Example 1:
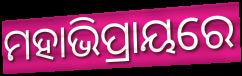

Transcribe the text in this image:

ମହାଭିପ୍ରାୟରେ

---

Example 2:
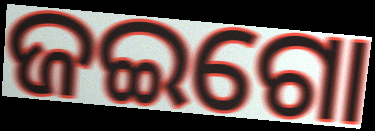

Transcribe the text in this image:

ଜଇଗୋ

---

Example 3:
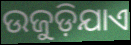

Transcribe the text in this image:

ଉଜୁଡ଼ିଯାଏ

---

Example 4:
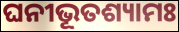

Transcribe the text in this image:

ଘନୀଭୂତଶ୍ୟାମଃ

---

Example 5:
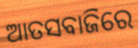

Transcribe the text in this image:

ଆତସବାଜିରେ